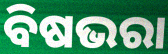
ବିଷଭରା